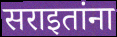
सराइतांना